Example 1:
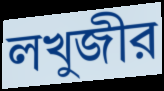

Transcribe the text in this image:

লখুজীর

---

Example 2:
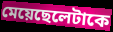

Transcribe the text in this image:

মেয়েছেলেটাকে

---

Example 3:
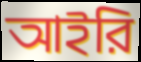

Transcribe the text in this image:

আইরি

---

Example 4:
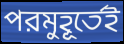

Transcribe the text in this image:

পরমুহূর্তেই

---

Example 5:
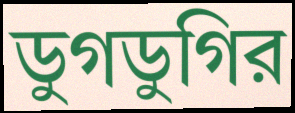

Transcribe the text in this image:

ডুগডুগির